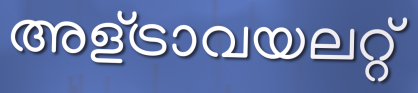
അള്ട്രാവയലറ്റ്